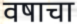
वषाचा